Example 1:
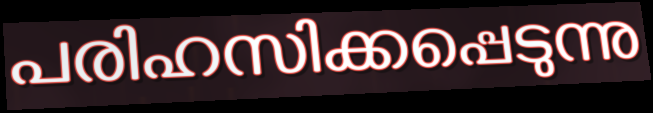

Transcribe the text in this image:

പരിഹസിക്കപ്പെടുന്നു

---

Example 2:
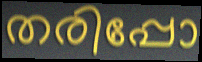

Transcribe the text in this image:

തരിപ്പോ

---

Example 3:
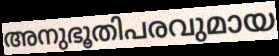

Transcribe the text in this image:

അനുഭൂതിപരവുമായ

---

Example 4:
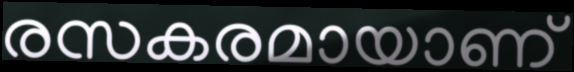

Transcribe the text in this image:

രസകരമായാണ്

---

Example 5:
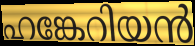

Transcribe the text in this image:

ഹങ്കേറിയൻ